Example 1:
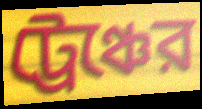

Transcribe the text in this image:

ট্রেঞ্চের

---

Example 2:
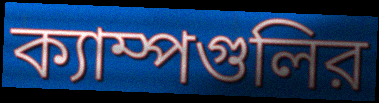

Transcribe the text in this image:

ক্যাম্পগুলির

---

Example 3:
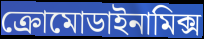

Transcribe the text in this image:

ক্রোমোডাইনামিক্স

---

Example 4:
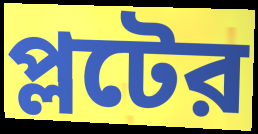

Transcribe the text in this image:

প্লটের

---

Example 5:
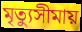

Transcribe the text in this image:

মৃত্যুসীমায়